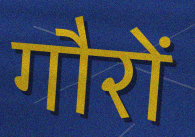
गौरों